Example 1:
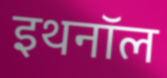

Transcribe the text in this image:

इथनॉल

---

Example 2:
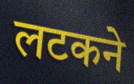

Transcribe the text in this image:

लटकने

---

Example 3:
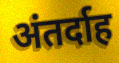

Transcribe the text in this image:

अंतर्दाह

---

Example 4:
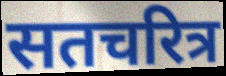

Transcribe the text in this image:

सतचरित्र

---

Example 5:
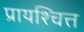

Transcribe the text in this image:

प्रायश्चित्त